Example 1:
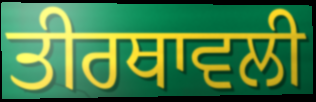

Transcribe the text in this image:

ਤੀਰਥਾਵਲੀ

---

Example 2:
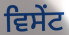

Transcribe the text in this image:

ਵਿਸੇਂਟ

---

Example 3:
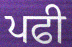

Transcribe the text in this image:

ਪਫੀ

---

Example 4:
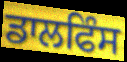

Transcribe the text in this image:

ਡਾਲਫਿੰਸ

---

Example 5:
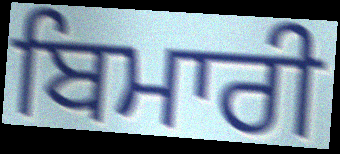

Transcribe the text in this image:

ਬਿਮਾਰੀ